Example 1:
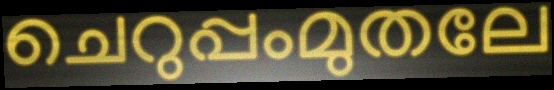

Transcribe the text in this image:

ചെറുപ്പംമുതലേ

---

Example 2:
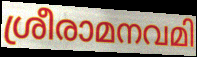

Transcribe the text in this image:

ശ്രീരാമനവമി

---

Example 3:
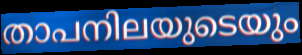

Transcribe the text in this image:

താപനിലയുടെയും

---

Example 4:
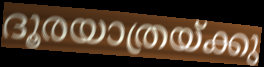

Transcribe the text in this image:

ദൂരയാത്രയ്ക്കു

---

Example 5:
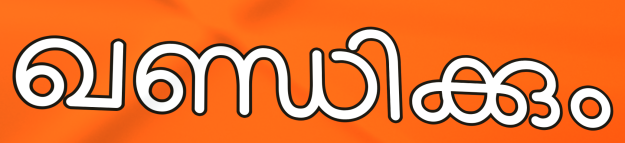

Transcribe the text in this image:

ഖണ്ഡിക്കും